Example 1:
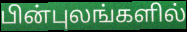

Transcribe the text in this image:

பின்புலங்களில்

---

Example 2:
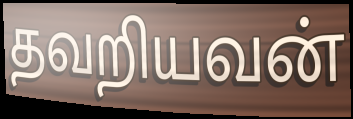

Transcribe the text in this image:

தவறியவன்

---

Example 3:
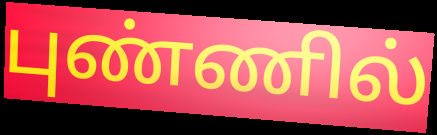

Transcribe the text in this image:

புண்ணில்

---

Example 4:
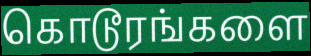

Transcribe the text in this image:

கொடூரங்களை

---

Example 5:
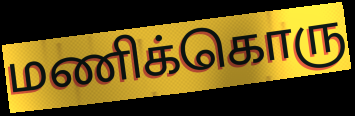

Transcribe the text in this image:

மணிக்கொரு